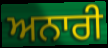
ਅਨਾਰੀ